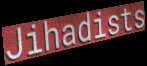
Jihadists